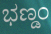
ಭಣ್ಡಂ